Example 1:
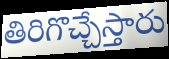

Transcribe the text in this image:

తిరిగొచ్చేస్తారు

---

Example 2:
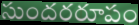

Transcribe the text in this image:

సుందరరూపం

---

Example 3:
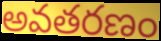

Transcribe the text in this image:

అవతరణం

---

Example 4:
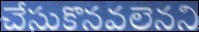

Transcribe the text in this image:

చేసుకొనవలెనని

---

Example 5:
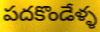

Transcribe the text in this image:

పదకొండేళ్ళ